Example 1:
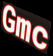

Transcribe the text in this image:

Gmc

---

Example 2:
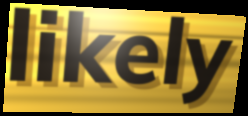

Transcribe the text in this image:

likely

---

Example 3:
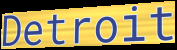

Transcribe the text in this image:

Detroit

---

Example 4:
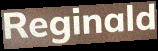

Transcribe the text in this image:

Reginald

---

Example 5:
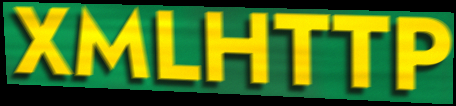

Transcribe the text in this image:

XMLHTTP